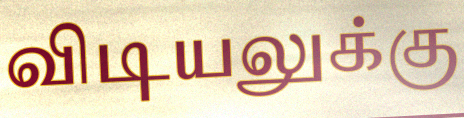
விடியலுக்கு